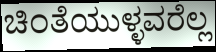
ಚಿಂತೆಯುಳ್ಳವರೆಲ್ಲ